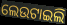
ଲେଉଟାଇଲି